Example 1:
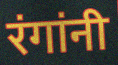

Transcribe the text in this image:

रंगांनी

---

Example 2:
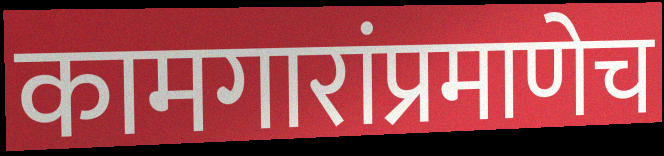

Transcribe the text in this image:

कामगारांप्रमाणेच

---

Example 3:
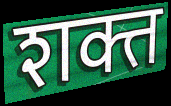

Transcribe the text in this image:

शक्त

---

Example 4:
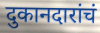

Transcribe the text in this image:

दुकानदारांचं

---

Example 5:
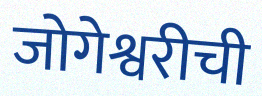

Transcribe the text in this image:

जोगेश्वरीची